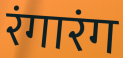
रंगारंग